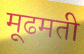
मूढमती